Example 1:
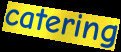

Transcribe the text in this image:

catering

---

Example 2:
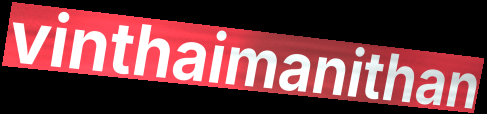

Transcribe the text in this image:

vinthaimanithan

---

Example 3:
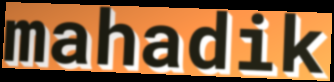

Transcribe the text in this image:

mahadik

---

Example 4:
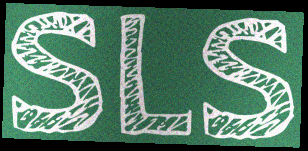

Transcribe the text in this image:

SLS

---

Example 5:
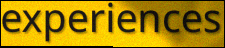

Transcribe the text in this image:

experiences